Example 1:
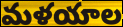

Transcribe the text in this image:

మళయాల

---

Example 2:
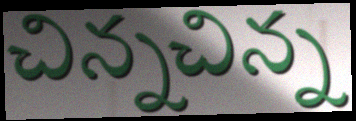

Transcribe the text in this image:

చిన్నచిన్న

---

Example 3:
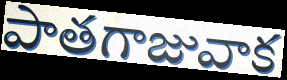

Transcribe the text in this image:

పాతగాజువాక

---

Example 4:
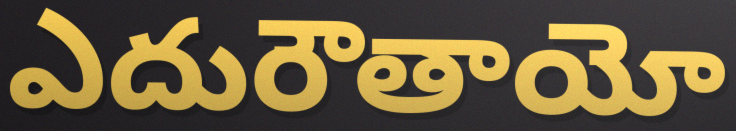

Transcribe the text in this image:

ఎదురౌతాయో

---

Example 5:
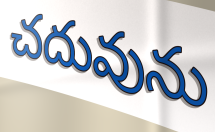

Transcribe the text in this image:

చదువును